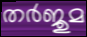
തർജുമ